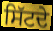
ਸਿੱਟਦੇ